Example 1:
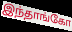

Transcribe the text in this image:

இந்தாங்கோ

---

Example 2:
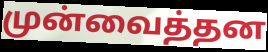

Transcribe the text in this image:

முன்வைத்தன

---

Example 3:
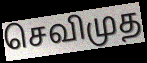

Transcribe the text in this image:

செவிமுத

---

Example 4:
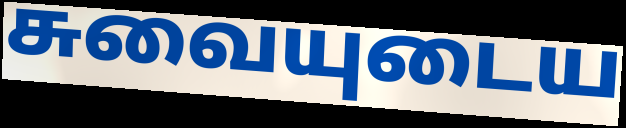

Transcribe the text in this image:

சுவையுடைய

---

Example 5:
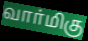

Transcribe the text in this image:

வார்மிகு